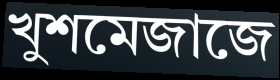
খুশমেজাজে